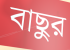
বাছুর